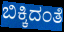
ಬಿಕ್ಕಿದಂತೆ